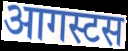
आगस्टस